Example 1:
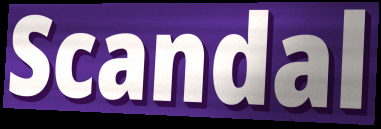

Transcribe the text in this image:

Scandal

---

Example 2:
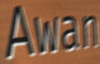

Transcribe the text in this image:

Awan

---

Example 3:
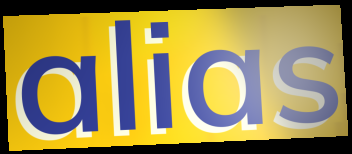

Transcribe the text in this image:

alias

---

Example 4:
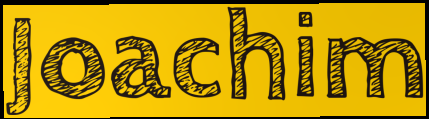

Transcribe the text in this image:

Joachim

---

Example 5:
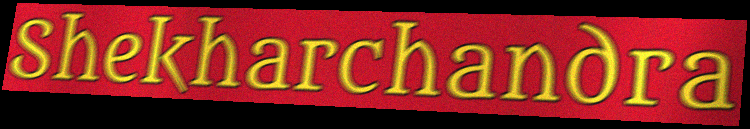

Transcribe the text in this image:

Shekharchandra